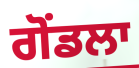
ਗੋਂਡਲਾ